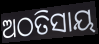
ଅଠତିସାୟ